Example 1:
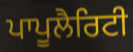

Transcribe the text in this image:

ਪਾਪੂਲੈਰਿਟੀ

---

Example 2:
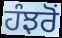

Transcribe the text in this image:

ਹੰਝਰੋਂ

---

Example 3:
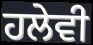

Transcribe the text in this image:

ਹਲੇਵੀ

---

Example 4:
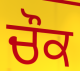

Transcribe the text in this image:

ਚੌਕ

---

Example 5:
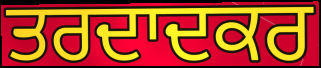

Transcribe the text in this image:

ਤਰਦਾਦਕਰ